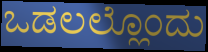
ಒಡಲಲ್ಲೊಂದು